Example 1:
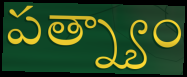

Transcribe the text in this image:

పత్న్యాం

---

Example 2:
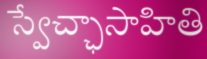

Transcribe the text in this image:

స్వేచ్ఛాసాహితి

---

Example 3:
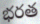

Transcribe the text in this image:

భరత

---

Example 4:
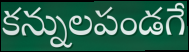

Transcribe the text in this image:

కన్నులపండగే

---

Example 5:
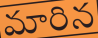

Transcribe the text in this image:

మారిన